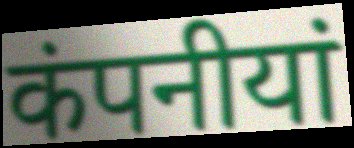
कंपनीयां